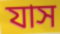
যাস